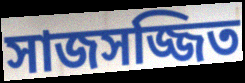
সাজসজ্জিত